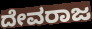
ದೇವರಾಜ